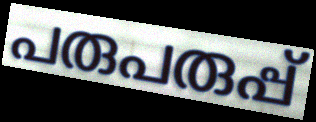
പരുപരുപ്പ്